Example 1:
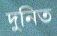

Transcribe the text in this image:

দুনিত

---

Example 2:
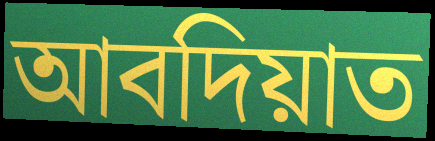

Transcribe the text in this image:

আবদিয়াত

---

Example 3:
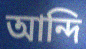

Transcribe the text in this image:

আন্দি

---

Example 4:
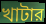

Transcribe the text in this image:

খাটার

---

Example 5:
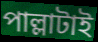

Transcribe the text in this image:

পাল্লাটাই